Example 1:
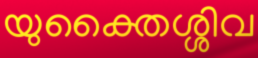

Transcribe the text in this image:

യുക്തൈശ്ശിവ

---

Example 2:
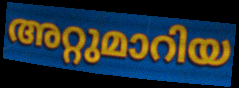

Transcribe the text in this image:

അറ്റുമാറിയ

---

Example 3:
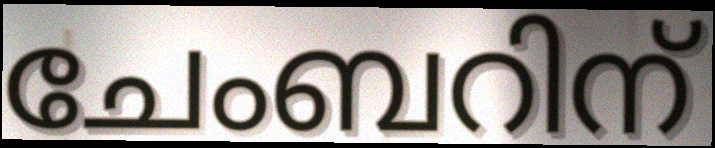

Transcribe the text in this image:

ചേംബറിന്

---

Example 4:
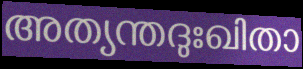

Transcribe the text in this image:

അത്യന്തദുഃഖിതാ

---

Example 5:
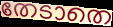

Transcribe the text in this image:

തേടാതെ